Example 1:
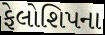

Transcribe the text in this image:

ફેલોશિપના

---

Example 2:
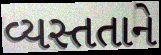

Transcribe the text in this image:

વ્યસ્તતાને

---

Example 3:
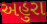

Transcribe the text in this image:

અહુરા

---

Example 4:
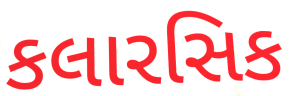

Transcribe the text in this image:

કલારસિક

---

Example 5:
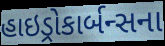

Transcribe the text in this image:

હાઇડ્રોકાર્બન્સના